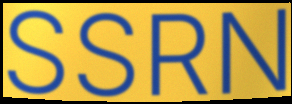
SSRN